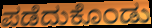
ಪಡೆದುಕೊಂಡು